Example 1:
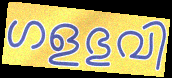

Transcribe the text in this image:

ഗളഭുവി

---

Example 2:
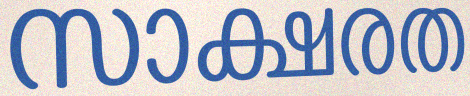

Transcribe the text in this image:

സാക്ഷരത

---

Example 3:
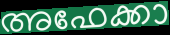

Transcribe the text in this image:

അഫേക്കാ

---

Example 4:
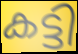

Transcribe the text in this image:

കട്ടി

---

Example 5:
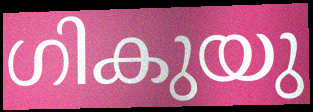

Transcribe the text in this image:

ഗികുയു